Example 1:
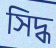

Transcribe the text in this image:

সিদ্ধ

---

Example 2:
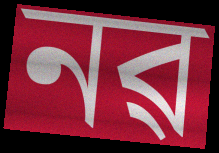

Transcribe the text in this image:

নৱ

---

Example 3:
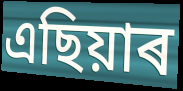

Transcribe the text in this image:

এছিয়াৰ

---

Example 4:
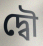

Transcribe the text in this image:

দ্বৌ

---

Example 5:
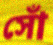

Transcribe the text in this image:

সোঁ